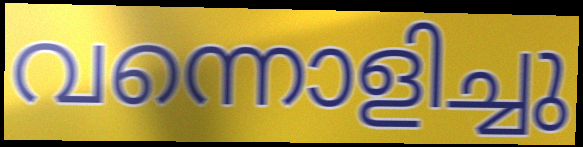
വന്നൊളിച്ചു